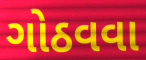
ગોઠવવા